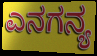
ಎನಗನ್ಯ